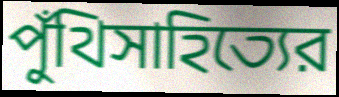
পুঁথিসাহিত্যের